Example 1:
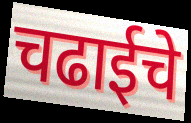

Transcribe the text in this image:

चढाईचे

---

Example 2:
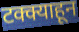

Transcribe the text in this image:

टक्क्याहून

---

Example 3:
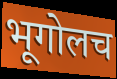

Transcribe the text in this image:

भूगोलच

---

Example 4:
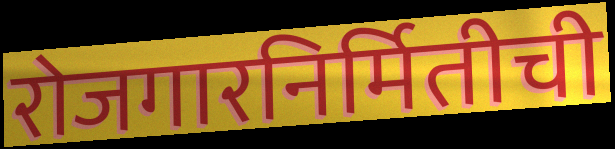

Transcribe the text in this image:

रोजगारनिर्मितीची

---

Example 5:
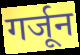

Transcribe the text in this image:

गर्जून